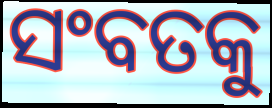
ସଂବତକୁ